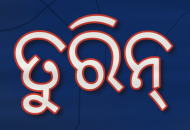
ତୁରିନ୍